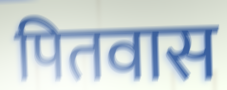
पितवास